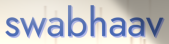
swabhaav